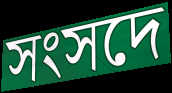
সংসদে